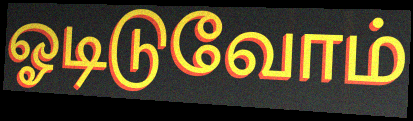
ஓடிடுவோம்